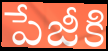
పేజీకి